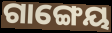
ଗାଙ୍ଗେୟ